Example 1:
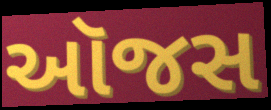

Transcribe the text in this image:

ઑજસ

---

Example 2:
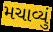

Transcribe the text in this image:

મચાવ્યું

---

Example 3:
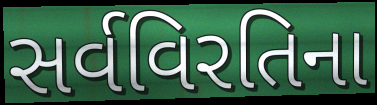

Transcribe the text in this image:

સર્વવિરતિના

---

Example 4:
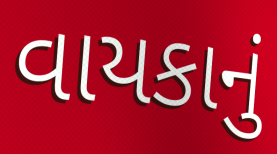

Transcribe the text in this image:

વાયકાનું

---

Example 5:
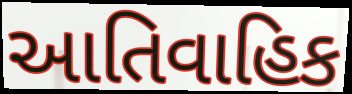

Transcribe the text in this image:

આતિવાહિક